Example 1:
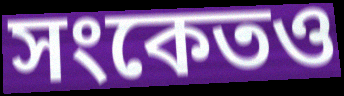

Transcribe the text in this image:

সংকেতও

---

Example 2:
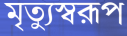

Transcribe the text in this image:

মৃত্যুস্বরূপ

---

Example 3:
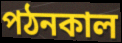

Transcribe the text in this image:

পঠনকাল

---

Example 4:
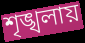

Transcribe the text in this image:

শৃঙ্খলায়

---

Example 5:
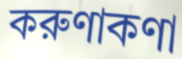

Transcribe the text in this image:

করুণাকণা